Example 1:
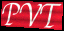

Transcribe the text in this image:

PVT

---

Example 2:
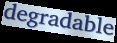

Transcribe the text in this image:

degradable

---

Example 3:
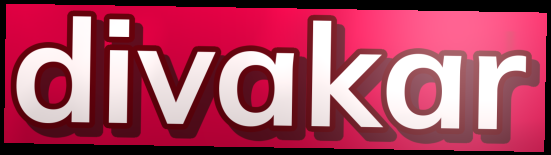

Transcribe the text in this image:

divakar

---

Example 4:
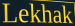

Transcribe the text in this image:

Lekhak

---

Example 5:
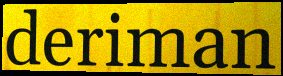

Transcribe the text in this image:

deriman